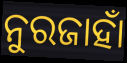
ନୁରଜାହାଁ